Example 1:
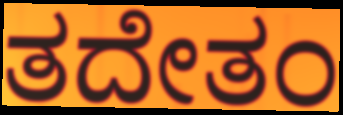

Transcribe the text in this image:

ತದೇತಂ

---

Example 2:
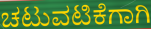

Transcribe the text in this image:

ಚಟುವಟಿಕೆಗಾಗಿ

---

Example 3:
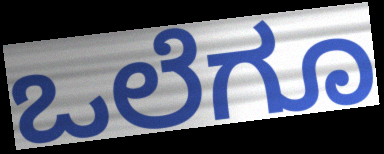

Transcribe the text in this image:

ಒಲೆಗೂ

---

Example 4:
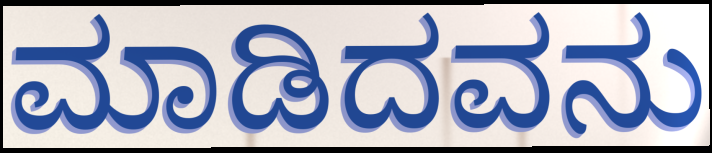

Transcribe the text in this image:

ಮಾಡಿದವನು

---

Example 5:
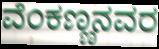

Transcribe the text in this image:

ವೆಂಕಣ್ಣನವರ